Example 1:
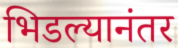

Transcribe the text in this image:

भिडल्यानंतर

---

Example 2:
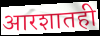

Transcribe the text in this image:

आरशातही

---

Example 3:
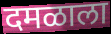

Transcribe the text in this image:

दमळाला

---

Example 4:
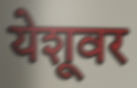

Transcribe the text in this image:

येशूवर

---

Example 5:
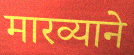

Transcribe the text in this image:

मारव्याने